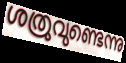
ശത്രുവുണ്ടെന്നു